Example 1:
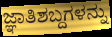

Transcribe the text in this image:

ಜ್ಞಾತಿಶಬ್ದಗಳನ್ನು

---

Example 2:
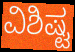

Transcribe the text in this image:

ವಿಶಿಷ್ಟ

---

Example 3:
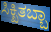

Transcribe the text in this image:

ಸಿಕ್ಖಿತಬ್ಬಾ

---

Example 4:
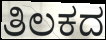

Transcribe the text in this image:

ತಿಲಕದ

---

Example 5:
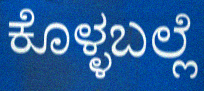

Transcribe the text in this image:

ಕೊಳ್ಳಬಲ್ಲೆ